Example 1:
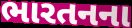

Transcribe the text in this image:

ભારતનના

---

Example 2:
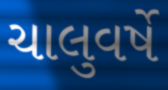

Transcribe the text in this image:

ચાલુવર્ષે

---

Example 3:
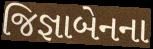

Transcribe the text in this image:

જિજ્ઞાબેનના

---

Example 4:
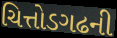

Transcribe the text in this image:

ચિત્તોડગઢની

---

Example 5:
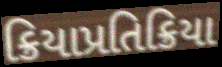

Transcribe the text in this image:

ક્રિયાપ્રતિક્રિયા